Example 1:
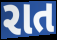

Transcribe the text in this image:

રાત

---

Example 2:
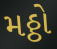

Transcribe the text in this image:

મઠ્ઠો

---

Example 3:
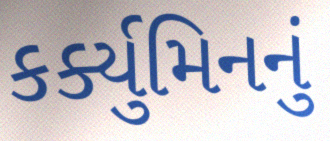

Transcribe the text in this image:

કર્ક્યુમિનનું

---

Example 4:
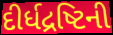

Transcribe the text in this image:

દીર્ધદ્રષ્ટિની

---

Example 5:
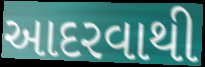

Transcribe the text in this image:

આદરવાથી